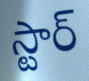
స్టార్